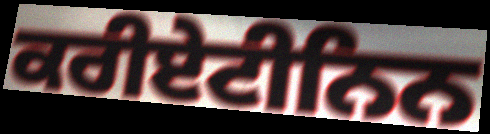
ਕਰੀਏਟੀਨਿਨ